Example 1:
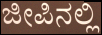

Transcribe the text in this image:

ಜೀಪಿನಲ್ಲಿ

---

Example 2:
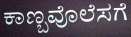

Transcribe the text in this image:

ಕಾಣ್ಬವೊಲೆಸಗೆ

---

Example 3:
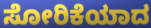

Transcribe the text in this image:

ಸೋರಿಕೆಯಾದ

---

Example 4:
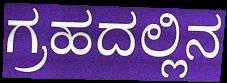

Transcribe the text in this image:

ಗ್ರಹದಲ್ಲಿನ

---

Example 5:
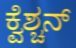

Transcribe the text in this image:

ಕ್ವೆಶ್ಚನ್